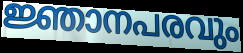
ജ്ഞാനപരവും